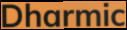
Dharmic